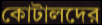
কোটালদের